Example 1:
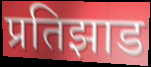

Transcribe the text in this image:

प्रतिझाड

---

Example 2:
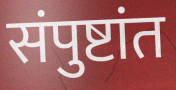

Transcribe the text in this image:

संपुष्टांत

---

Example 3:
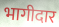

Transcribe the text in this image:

भागीदार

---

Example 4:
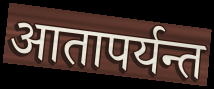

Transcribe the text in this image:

आतापर्यन्त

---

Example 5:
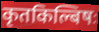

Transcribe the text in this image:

कृतकिल्बिषः